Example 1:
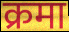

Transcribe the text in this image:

क्रमा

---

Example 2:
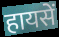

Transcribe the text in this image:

हायसें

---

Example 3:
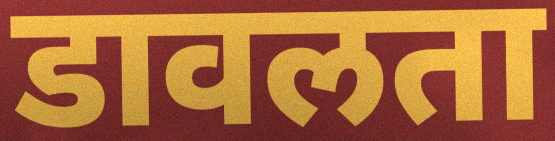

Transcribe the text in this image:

डावलता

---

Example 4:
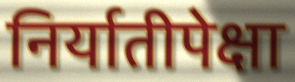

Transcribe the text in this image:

निर्यातीपेक्षा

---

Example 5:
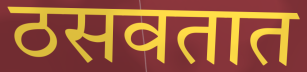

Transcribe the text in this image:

ठसवतात